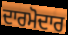
ਦਾਰਮੋਦਾਰ